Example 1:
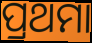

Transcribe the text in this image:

ପ୍ରଥମା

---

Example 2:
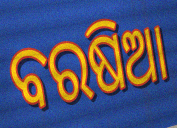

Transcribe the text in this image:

ବରଷିଆ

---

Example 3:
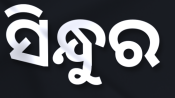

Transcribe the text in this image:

ସିନ୍ଧୁର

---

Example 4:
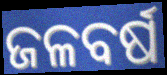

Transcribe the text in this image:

ଜଳବର୍ଷ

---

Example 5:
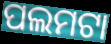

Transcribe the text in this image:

ପଲମଟା